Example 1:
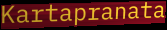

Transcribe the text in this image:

Kartapranata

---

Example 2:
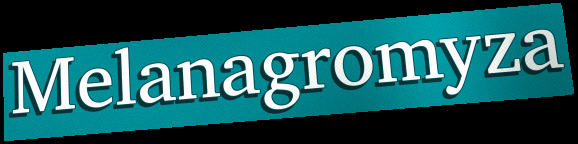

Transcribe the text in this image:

Melanagromyza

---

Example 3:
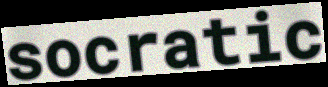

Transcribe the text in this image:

socratic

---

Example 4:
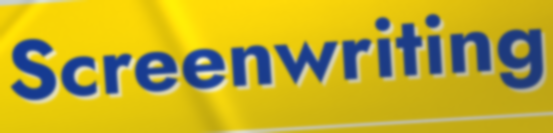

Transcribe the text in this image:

Screenwriting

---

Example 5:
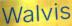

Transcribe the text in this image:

Walvis